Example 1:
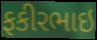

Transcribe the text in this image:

ફકીરભાઇ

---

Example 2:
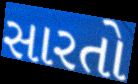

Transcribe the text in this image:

સારતો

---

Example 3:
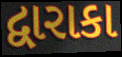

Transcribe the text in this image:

દ્વારાકા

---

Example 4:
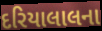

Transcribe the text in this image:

દરિયાલાલના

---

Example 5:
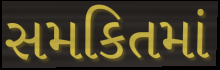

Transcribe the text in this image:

સમકિતમાં